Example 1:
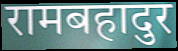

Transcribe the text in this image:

रामबहादुर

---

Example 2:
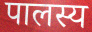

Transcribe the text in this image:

पालस्य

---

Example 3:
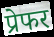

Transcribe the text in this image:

प्रेफर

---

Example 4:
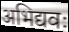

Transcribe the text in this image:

अभिद्यवः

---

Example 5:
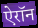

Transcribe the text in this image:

ऐरॉन